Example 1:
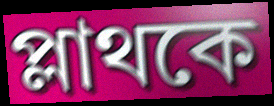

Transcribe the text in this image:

প্লাথকে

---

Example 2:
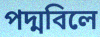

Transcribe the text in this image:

পদ্মবিলে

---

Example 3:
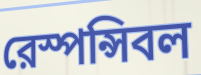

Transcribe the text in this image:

রেস্পন্সিবল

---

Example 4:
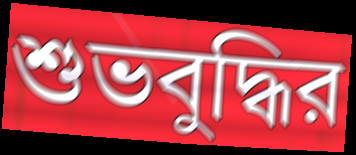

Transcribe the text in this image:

শুভবুদ্ধির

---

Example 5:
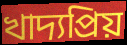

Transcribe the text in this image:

খাদ্যপ্রিয়